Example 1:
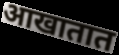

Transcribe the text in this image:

आखातात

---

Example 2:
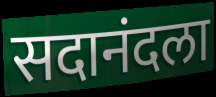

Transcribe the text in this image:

सदानंदला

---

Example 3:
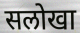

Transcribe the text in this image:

सलोखा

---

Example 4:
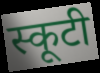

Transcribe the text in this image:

स्कूटी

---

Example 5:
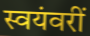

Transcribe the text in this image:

स्वयंवरीं